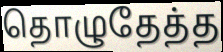
தொழுதேத்த